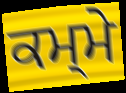
ਕਮ੍ਮੇ